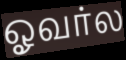
ஓவர்ல